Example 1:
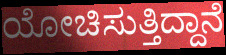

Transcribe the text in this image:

ಯೋಚಿಸುತ್ತಿದ್ದಾನೆ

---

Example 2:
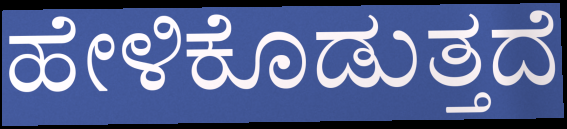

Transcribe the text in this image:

ಹೇಳಿಕೊಡುತ್ತದೆ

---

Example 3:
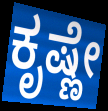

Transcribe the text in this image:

ಕೃಷ್ಣೇ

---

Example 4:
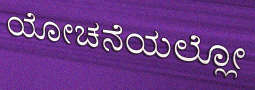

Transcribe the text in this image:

ಯೋಚನೆಯಲ್ಲೋ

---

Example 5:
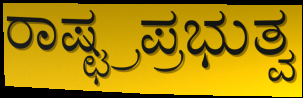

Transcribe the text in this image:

ರಾಷ್ಟ್ರಪ್ರಭುತ್ವ